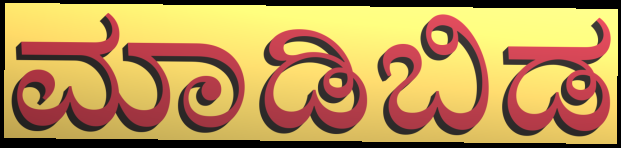
ಮಾಡಿಬಿಡ